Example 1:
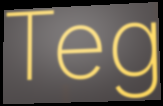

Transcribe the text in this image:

Teg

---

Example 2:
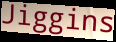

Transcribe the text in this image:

Jiggins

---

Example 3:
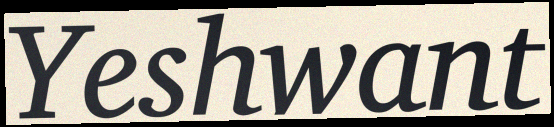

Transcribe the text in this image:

Yeshwant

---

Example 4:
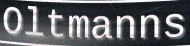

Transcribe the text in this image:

Oltmanns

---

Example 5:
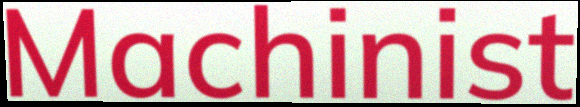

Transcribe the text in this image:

Machinist